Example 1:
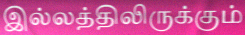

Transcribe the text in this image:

இல்லத்திலிருக்கும்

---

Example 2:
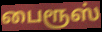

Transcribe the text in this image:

பைரூஸ்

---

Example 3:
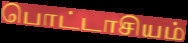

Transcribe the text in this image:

பொட்டாசியம்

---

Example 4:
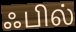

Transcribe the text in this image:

ஃபில்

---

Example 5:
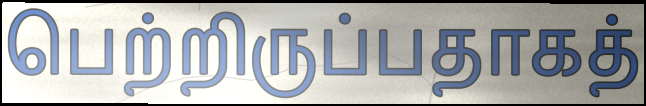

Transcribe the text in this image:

பெற்றிருப்பதாகத்